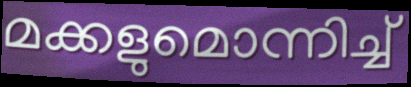
മക്കളുമൊന്നിച്ച്